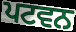
ਪਟਵਨ